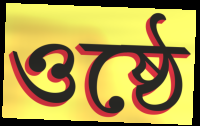
ওষ্ঠে